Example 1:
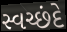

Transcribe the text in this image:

સ્વચ્છંદે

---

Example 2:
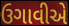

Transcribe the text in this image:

ઉગાવીએ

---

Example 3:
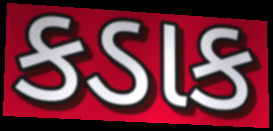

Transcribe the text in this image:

કડાક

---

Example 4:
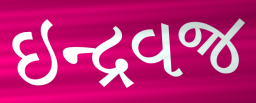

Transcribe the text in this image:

ઇન્દ્રવજ્ર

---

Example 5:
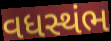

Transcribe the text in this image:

વધસ્થંભ